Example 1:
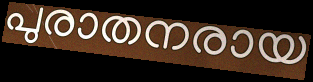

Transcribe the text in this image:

പുരാതനരായ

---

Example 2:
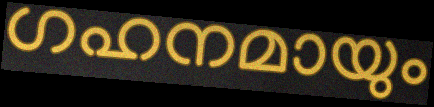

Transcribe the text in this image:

ഗഹനമായും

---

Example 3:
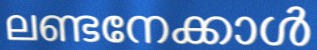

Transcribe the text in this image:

ലണ്ടനേക്കാൾ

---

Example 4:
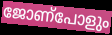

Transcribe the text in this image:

ജോണ്പോളും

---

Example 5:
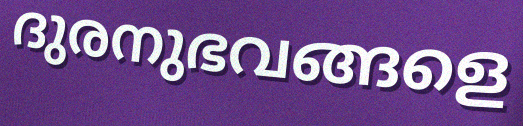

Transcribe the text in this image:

ദുരനുഭവങ്ങളെ